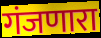
गंजणारा